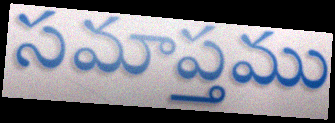
సమాప్తము